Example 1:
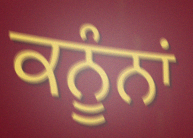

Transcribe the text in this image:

ਕਨੂੰਨਾਂ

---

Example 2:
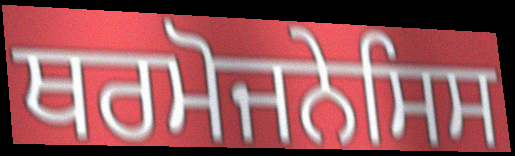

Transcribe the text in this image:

ਥਰਮੋਜਨੇਸਿਸ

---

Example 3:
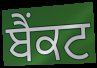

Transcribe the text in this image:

ਬੈਂਕਟ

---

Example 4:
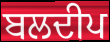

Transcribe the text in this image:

ਬਲਦੀਪ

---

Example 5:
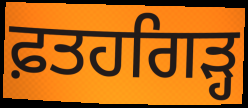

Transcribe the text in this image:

ਫ਼ਤਹਗਿੜ੍ਹ